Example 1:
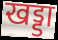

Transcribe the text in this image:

खड्डा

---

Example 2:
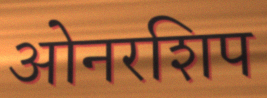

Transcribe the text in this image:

ओनरशिप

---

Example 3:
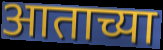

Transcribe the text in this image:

आताच्या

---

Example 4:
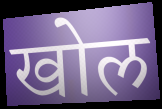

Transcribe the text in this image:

खोल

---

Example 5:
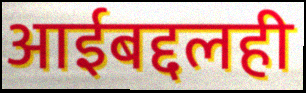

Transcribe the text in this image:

आईबद्दलही